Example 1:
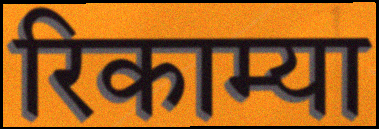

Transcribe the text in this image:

रिकाम्या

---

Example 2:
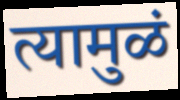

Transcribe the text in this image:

त्यामुळं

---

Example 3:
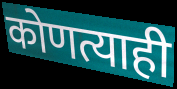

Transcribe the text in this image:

कोणत्याही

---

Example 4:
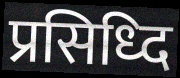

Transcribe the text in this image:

प्रसिध्दि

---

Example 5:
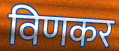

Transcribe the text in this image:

विणकर